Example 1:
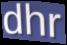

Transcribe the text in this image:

dhr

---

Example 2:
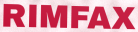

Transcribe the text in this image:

RIMFAX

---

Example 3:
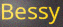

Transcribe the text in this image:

Bessy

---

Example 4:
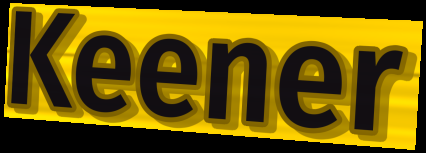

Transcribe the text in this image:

Keener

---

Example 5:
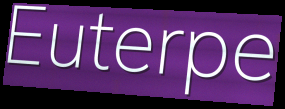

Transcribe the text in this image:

Euterpe